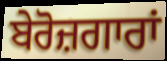
ਬੇਰੋਜ਼ਗਾਰਾਂ